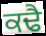
ਕਢੈ